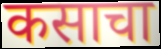
कसाचा